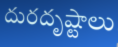
దురదృష్టాలు